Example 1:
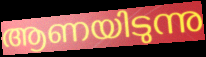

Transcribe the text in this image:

ആണയിടുന്നു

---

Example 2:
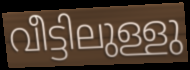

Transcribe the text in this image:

വീട്ടിലുള്ളു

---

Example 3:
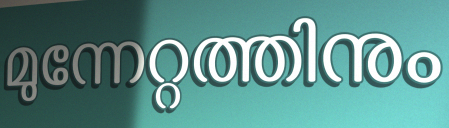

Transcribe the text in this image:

മുന്നേറ്റത്തിനും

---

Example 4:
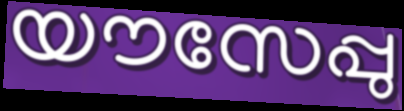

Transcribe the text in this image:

യൗസേപ്പു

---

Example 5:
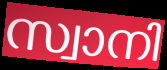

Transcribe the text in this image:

സ്വാനി